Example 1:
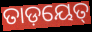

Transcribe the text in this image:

ତାଡ଼ୟେତ୍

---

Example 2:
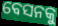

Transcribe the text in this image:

ବେସନକୁ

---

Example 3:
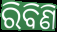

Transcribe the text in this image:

ରିବିଣି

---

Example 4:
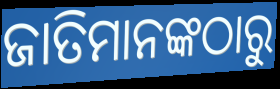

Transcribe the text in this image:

ଜାତିମାନଙ୍କଠାରୁ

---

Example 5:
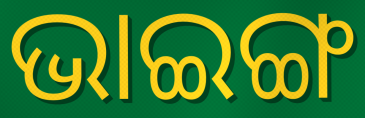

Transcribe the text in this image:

ଭାଇଙ୍ଗ